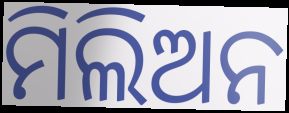
ମିଲିଅନ